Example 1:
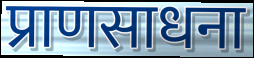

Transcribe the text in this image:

प्राणसाधना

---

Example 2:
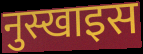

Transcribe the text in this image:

नुस्खाइस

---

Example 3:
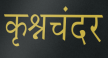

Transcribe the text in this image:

कृश्नचंदर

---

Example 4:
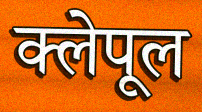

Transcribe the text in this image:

क्लेपूल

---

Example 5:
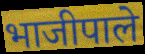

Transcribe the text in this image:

भाजीपाले